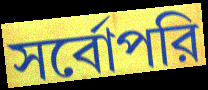
সর্বোপরি